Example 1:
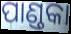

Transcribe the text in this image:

ପାଣ୍ଡକା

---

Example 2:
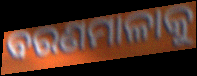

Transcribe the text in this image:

ବରଣମାଳାକୁ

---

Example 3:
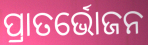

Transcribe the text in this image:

ପ୍ରାତର୍ଭୋଜନ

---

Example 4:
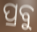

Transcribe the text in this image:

ପ୍ରବୁ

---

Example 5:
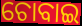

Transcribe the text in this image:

ଚୋବାଇ